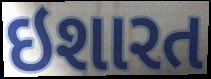
ઇશારત